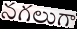
నగలుగా